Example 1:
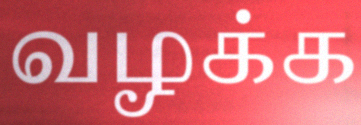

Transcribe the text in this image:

வழக்க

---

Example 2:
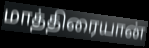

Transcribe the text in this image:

மாத்திரையான்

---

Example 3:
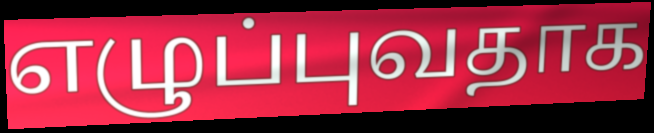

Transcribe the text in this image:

எழுப்புவதாக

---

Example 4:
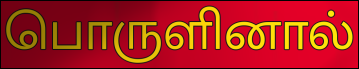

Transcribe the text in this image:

பொருளினால்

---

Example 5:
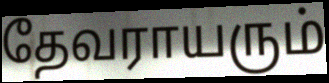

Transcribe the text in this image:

தேவராயரும்